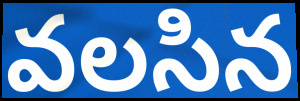
వలసిన